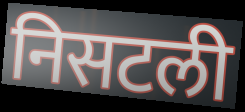
निसटली